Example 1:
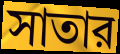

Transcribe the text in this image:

সাতার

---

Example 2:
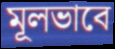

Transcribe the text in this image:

মূলভাবে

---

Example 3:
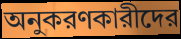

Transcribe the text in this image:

অনুকরণকারীদের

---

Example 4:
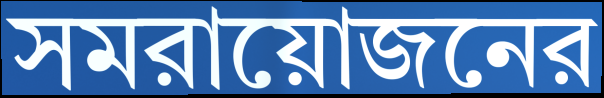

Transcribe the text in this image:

সমরায়োজনের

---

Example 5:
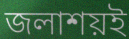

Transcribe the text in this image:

জলাশয়ই